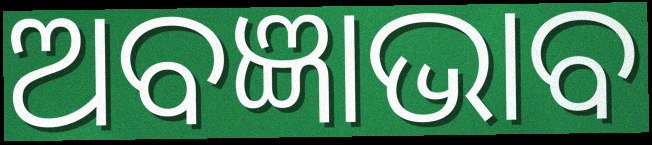
ଅବଜ୍ଞାଭାବ